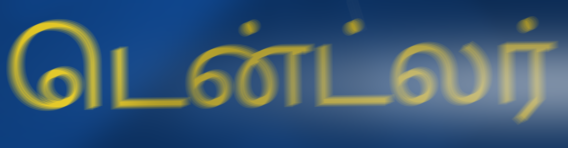
டென்ட்லர்